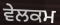
ਵੇਲਕਮ